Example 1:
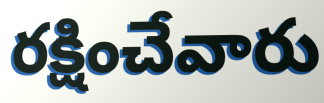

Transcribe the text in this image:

రక్షించేవారు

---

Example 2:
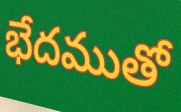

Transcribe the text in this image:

భేదముతో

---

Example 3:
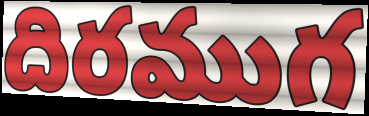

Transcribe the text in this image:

దిరముగ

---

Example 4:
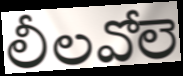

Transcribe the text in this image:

లీలవోలె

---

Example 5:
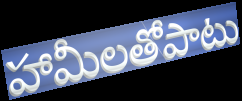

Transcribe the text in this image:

హామీలతోపాటు